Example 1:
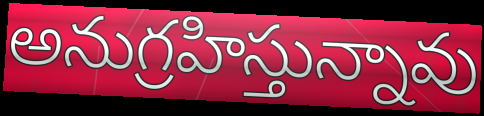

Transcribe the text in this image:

అనుగ్రహిస్తున్నావు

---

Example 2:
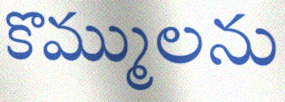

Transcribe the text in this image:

కొమ్ములను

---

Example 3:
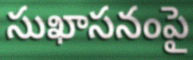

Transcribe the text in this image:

సుఖాసనంపై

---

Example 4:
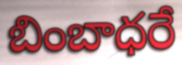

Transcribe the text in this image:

బింబాధరే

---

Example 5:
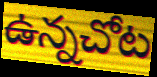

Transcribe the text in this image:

ఉన్నచోట